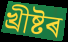
খ্ৰীষ্টৰ